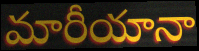
మారీయానా